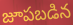
జూపబడిన